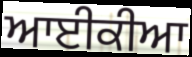
ਆਈਕੀਆ